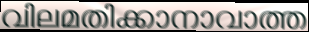
വിലമതിക്കാനാവാത്ത